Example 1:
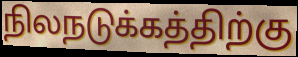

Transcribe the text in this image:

நிலநடுக்கத்திற்கு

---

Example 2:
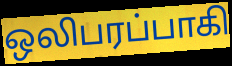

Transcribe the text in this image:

ஒலிபரப்பாகி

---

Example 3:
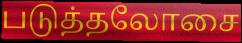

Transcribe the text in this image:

படுத்தலோசை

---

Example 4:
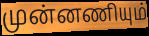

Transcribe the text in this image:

முன்னணியும்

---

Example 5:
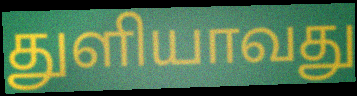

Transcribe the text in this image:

துளியாவது